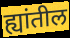
ह्यांतील